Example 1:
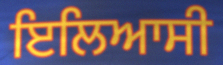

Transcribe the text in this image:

ਇਲਿਆਸੀ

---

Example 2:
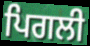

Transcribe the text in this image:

ਪਿਗਲੀ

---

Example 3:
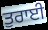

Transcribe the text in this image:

ਤੁਰਾਈ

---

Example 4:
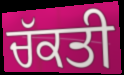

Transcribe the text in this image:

ਚੱਕਤੀ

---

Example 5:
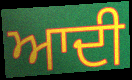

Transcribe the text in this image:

ਆਦੀ